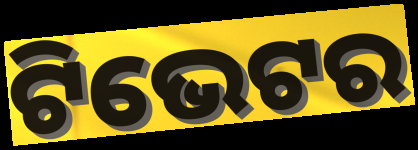
ଟିଭେଟର